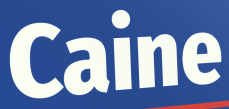
Caine